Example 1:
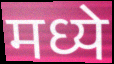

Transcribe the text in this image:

मध्ये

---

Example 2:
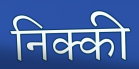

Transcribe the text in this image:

निक्की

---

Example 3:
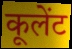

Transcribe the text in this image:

कूलेंट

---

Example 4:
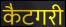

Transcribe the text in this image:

कैटगरी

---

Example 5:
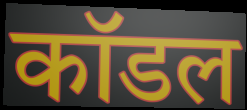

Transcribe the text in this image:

कॉडल